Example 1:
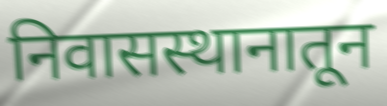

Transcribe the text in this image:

निवासस्थानातून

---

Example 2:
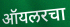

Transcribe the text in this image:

ऑयलरचा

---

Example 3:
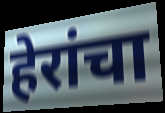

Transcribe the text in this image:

हेरांचा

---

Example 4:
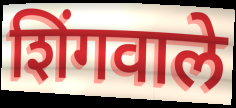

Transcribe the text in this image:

शिंगवाले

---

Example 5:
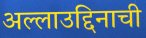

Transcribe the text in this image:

अल्लाउद्दिनाची